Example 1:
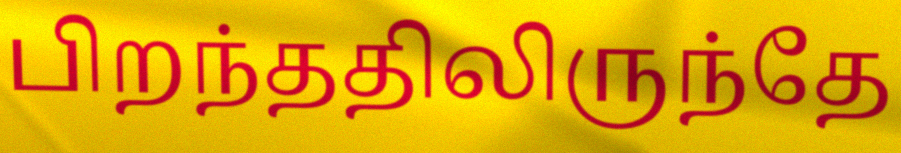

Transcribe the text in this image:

பிறந்ததிலிருந்தே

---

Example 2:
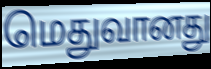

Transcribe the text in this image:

மெதுவானது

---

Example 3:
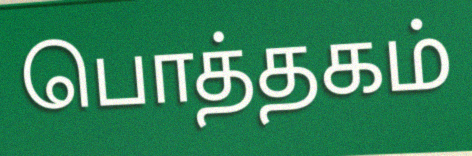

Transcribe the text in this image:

பொத்தகம்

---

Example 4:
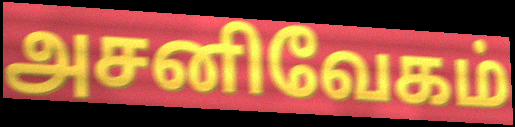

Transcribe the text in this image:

அசனிவேகம்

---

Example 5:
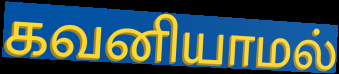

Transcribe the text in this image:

கவனியாமல்